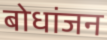
बोधांजन